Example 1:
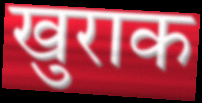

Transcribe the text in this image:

खुराक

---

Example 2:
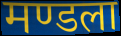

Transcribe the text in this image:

मण्डला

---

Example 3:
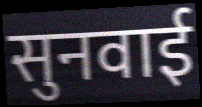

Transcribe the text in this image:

सुनवाई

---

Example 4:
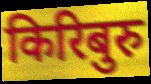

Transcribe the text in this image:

किरिबुरु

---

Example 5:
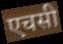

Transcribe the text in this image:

एचसी